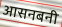
आसनबनी